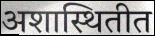
अशास्थितीत